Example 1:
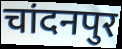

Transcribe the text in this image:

चांदनपुर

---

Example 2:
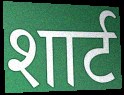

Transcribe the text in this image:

शार्ट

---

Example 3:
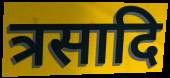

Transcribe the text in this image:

त्रसादि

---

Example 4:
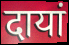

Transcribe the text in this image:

दायां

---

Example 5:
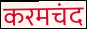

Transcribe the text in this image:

करमचंद